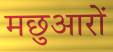
मछुआरों